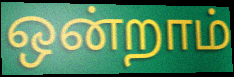
ஒன்றாம்